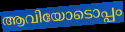
ആവിയോടൊപ്പം